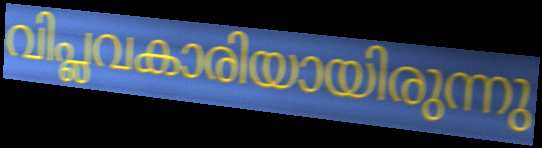
വിപ്ലവകാരിയായിരുന്നു